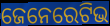
ଜେନେରେଟିଭ